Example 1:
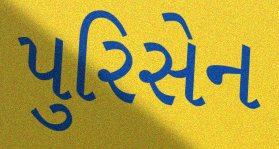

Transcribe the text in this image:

પુરિસેન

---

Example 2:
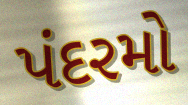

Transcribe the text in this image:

પંદરમો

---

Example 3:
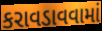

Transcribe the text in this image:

કરાવડાવવામાં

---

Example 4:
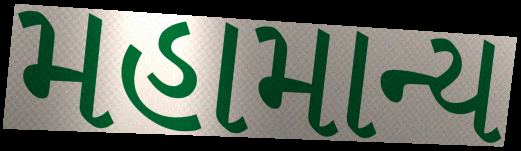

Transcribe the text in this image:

મહામાન્ય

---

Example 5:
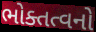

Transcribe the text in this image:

ભોક્તત્વનો